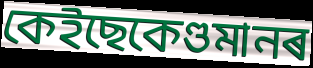
কেইছেকেণ্ডমানৰ